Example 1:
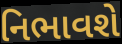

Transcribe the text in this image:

નિભાવશે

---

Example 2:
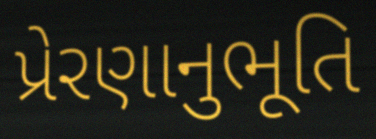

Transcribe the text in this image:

પ્રેરણાનુભૂતિ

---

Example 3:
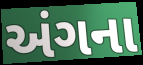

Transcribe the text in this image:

અંગના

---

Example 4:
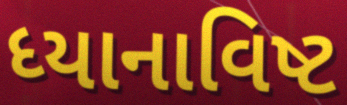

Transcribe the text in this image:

ધ્યાનાવિષ્ટ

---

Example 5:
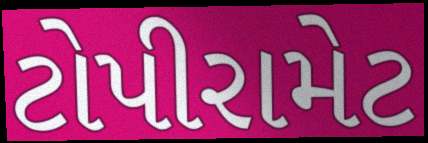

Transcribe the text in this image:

ટોપીરામેટ